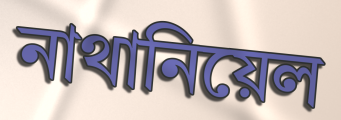
নাথানিয়েল